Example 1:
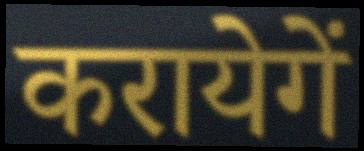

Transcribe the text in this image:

करायेगें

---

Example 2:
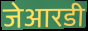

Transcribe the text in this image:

जेआरडी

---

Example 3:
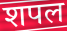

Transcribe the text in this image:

शपल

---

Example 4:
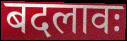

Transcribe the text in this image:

बदलावः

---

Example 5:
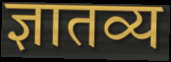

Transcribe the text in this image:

ज्ञातव्य